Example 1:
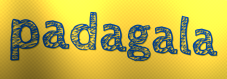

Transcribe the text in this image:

padagala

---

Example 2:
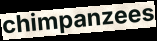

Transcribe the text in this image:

chimpanzees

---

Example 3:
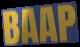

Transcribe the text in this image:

BAAP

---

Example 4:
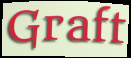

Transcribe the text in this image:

Graft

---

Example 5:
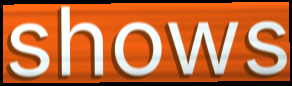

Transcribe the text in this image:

shows